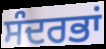
ਸੰਦਰਭਾਂ